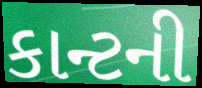
કાન્ટની